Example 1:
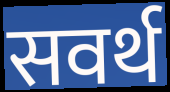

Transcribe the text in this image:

सवर्थ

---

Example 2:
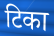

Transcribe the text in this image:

टिका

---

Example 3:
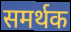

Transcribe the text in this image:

समर्थक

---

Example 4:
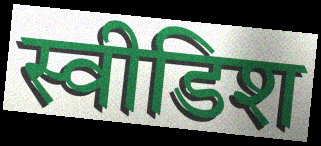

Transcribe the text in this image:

स्वीडिश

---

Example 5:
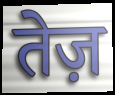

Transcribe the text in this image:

तेज़